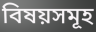
বিষয়সমূহ